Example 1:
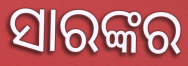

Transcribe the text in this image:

ସାରଙ୍କର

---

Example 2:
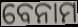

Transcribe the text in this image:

ବେନାମ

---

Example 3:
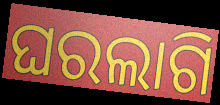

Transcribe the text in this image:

ଘରଲାଗି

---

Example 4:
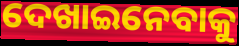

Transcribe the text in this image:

ଦେଖାଇନେବାକୁ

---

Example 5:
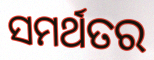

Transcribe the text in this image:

ସମର୍ଥତର